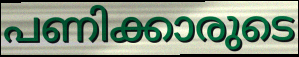
പണിക്കാരുടെ